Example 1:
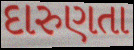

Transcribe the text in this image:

દારુણતા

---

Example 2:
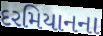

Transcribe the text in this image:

દરમિયાનના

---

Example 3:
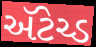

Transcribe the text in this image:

ઍટેચ્ડ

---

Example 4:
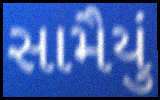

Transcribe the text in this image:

સામૈયું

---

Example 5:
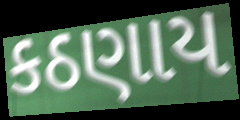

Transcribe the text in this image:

કઠણાય